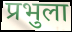
प्रभुला